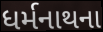
ધર્મનાથના